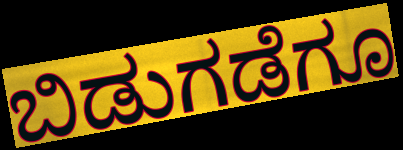
ಬಿಡುಗಡೆಗೂ